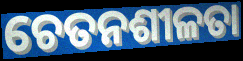
ଚେତନଶୀଳତା